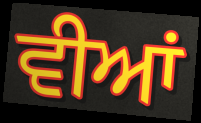
ਵੀਆਂ